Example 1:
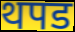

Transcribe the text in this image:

थपड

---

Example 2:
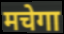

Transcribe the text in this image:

मचेगा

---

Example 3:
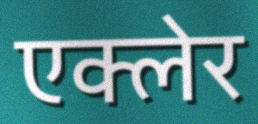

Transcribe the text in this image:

एक्लेर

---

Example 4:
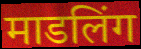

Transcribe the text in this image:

माडलिंग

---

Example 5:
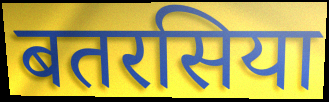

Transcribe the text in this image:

बतरसिया